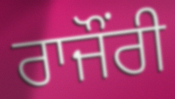
ਰਾਜੌਂਰੀ